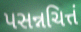
પસન્નચિત્તં